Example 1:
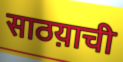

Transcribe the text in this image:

साठय़ाची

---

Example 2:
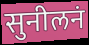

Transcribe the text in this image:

सुनीलनं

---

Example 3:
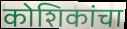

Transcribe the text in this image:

कोशिकांचा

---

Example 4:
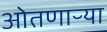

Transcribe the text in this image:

ओतणाऱ्या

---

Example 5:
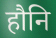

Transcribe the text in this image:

हौनि